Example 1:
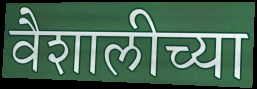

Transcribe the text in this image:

वैशालीच्या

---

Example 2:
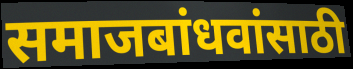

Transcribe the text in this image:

समाजबांधवांसाठी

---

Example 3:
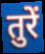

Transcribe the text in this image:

तुरें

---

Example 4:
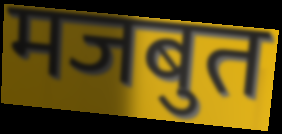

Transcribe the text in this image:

मजबुत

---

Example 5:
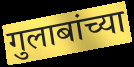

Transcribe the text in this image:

गुलाबांच्या